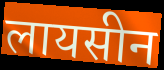
लायसीन